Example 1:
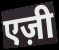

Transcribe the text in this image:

एज़ी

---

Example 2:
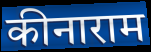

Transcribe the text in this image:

कीनाराम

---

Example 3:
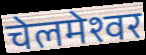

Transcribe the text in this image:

चेलमेश्वर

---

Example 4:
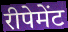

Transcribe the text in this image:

रीपेमेंट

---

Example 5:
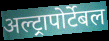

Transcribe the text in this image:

अल्ट्रापोर्टेबल